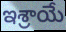
ఇశ్రాయే